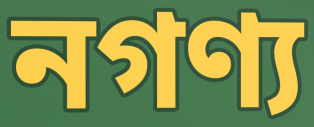
নগণ্য